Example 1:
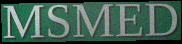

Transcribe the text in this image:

MSMED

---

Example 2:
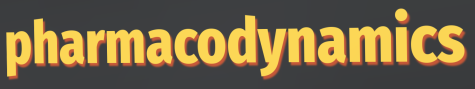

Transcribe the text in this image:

pharmacodynamics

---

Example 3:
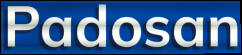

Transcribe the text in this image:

Padosan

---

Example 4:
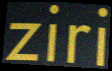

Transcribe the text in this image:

ziri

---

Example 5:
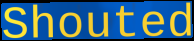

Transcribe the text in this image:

Shouted